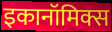
इकानॉमिक्स